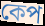
কেপ